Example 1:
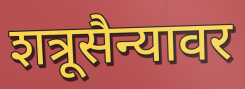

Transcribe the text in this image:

शत्रूसैन्यावर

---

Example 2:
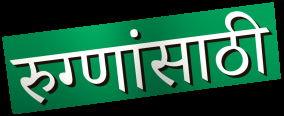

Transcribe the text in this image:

रुग्णांसाठी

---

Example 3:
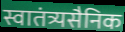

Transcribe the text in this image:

स्वातंत्र्यसैनिक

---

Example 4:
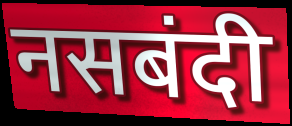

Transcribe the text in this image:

नसबंदी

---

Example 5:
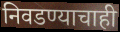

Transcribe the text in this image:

निवडण्याचाही